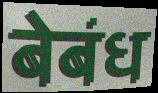
बेबंध